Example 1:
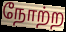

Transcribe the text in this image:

நோற்ற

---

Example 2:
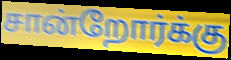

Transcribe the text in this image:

சான்றோர்க்கு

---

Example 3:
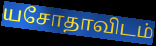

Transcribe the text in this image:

யசோதாவிடம்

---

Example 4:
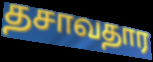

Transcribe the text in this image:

தசாவதார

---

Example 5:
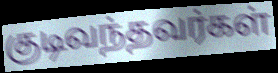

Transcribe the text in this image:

குடிவந்தவர்கள்